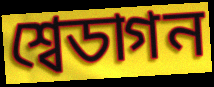
শ্বেডাগন